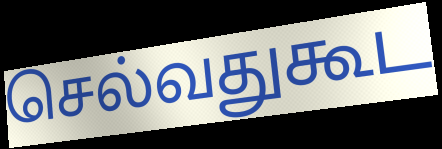
செல்வதுகூட